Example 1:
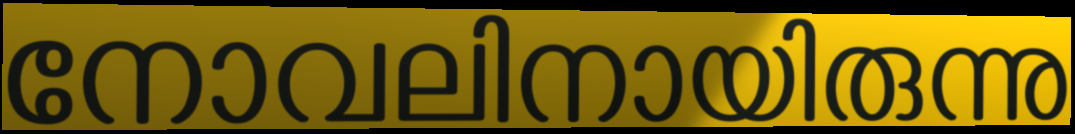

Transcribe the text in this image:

നോവലിനായിരുന്നു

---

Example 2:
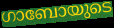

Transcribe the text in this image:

ഗാബോയുടെ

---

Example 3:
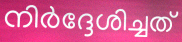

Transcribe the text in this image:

നിർദ്ദേശിച്ചത്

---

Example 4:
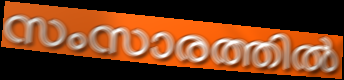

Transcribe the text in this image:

സംസാരത്തിൽ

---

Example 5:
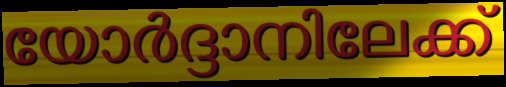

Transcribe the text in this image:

യോർദ്ദാനിലേക്ക്